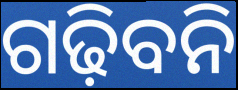
ଗଢ଼ିବନି